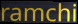
ramchi